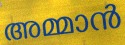
അമ്മാൻ